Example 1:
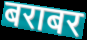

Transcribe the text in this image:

बराबर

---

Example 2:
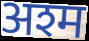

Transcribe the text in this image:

अश्म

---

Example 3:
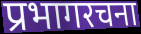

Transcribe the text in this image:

प्रभागरचना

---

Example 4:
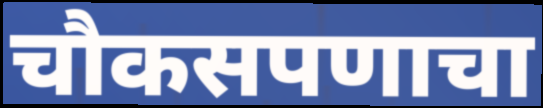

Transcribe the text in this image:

चौकसपणाचा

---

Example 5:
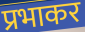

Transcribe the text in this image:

प्रभाकर